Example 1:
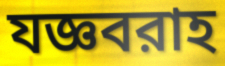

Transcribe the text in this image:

যজ্ঞবরাহ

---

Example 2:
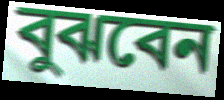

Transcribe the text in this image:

বুঝবেন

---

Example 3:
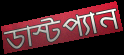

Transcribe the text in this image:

ডাস্টপ্যান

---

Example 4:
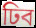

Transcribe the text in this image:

ঢিব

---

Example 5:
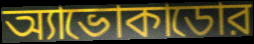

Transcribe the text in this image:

অ্যাভোকাডোর